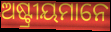
ଅଷ୍ଟ୍ରୀୟମାନେ